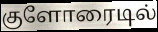
குளோரைடில்